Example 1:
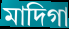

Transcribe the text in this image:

মাদিগা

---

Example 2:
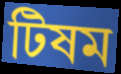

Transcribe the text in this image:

টিষম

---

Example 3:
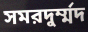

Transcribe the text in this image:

সমরদুর্ম্মদ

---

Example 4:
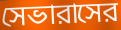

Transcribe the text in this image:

সেভারাসের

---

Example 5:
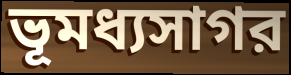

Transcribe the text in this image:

ভূমধ্যসাগর